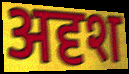
अदृश